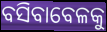
ବସିବାବେଳକୁ